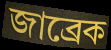
জাব্রেক